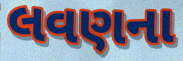
લવણના